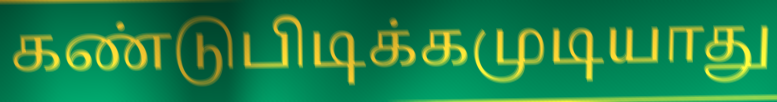
கண்டுபிடிக்கமுடியாது